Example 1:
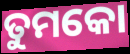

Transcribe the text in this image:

ତୁମକୋ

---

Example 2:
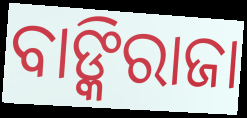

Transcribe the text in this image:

ବାଙ୍କିରାଜା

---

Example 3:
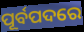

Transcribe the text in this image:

ପୂର୍ବପଦରେ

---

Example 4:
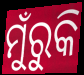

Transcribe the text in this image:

ମୁଁରୁକି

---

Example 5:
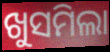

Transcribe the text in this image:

ଖୁସମିଲା